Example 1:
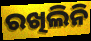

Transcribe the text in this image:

ରଖିଲିନି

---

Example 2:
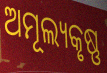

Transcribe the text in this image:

ଅମୂଲ୍ୟକୃଷ୍ଣ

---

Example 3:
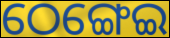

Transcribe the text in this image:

ଠେଙ୍ଗେଇ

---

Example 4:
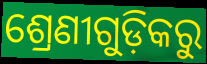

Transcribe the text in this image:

ଶ୍ରେଣୀଗୁଡ଼ିକରୁ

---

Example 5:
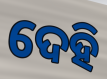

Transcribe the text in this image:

ଦେହି